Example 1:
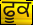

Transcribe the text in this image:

ਫੂਕ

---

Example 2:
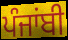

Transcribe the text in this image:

ਪੰਜਾਂਬੀ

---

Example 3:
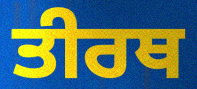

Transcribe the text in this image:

ਤੀਰਥ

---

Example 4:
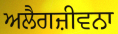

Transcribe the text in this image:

ਅਲੈਗਜ਼ੀਵਨਾ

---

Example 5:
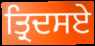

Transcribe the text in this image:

ਤ੍ਰਿਦਸਏ